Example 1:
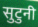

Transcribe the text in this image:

सुटुनी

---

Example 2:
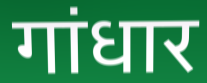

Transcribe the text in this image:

गांधार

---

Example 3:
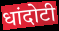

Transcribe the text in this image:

धांदोटी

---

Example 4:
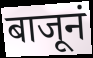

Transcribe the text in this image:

बाजूनं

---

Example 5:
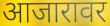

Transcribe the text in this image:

आजारावर